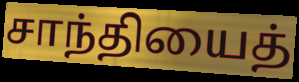
சாந்தியைத்